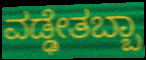
ವಡ್ಢೇತಬ್ಬಾ